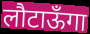
लौटाऊँगा